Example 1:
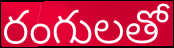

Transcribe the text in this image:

రంగులతో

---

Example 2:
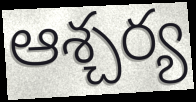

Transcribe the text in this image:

ఆశ్చర్య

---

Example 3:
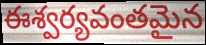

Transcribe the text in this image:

ఈశ్వర్యవంతమైన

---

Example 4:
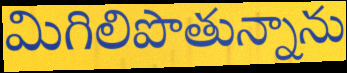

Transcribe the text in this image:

మిగిలిపొతున్నాను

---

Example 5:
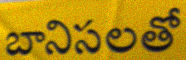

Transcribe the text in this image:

బానిసలతో